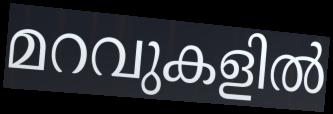
മറവുകളിൽ